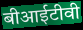
बीआईटीवी